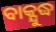
ବାକ୍ଯୁଦ୍ଧ